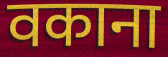
वकाना